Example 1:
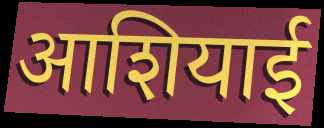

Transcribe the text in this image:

आशियाई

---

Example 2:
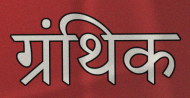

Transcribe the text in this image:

ग्रंथिक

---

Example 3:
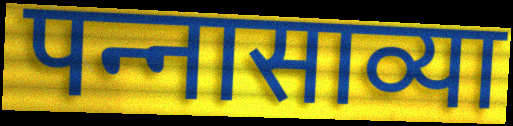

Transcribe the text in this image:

पन्नासाव्या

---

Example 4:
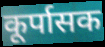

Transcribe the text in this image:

कूर्पासक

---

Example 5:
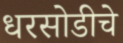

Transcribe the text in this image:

धरसोडीचे